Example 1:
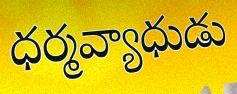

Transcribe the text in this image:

ధర్మవ్యాధుడు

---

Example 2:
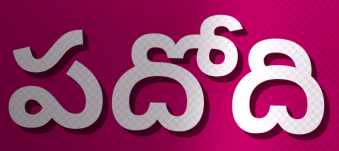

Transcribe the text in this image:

పదోది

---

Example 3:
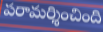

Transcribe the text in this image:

పరామర్శించింది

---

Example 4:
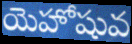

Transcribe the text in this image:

యెహోషువ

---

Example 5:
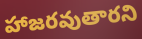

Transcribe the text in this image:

హాజరవుతారని